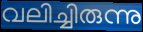
വലിച്ചിരുന്നു